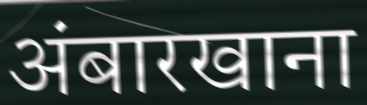
अंबारखाना